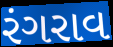
રંગરાવ